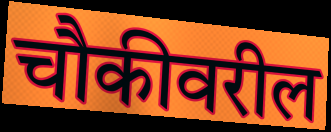
चौकीवरील